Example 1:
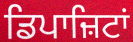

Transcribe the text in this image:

ਡਿਪਾਜ਼ਿਟਾਂ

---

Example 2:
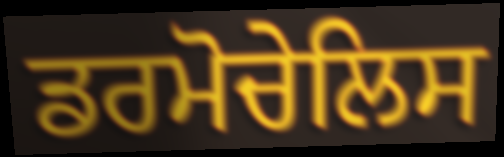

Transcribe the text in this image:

ਡਰਮੋਚੇਲਿਸ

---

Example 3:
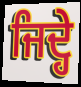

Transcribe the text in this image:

ਜਿਦ੍ਹੇ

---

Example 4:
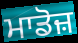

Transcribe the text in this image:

ਮਾਡੋਜ਼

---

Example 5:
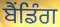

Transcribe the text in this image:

ਬੈਂਡਿੰਗ